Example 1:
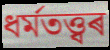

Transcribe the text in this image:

ধৰ্মতত্ত্বৰ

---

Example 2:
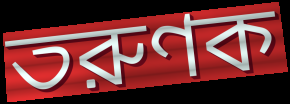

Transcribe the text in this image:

তৰুণক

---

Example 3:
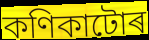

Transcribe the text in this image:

কণিকাটোৰ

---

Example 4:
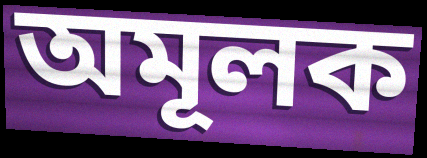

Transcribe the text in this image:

অমূলক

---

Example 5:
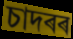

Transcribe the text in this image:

চাদৰৰ